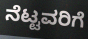
ನೆಟ್ಟವರಿಗೆ